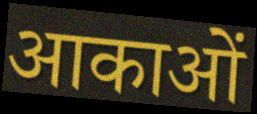
आकाओं